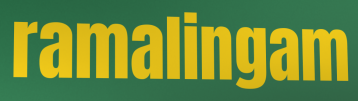
ramalingam